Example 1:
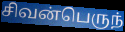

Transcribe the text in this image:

சிவன்பெருந்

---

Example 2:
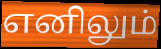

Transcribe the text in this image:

எனிலும்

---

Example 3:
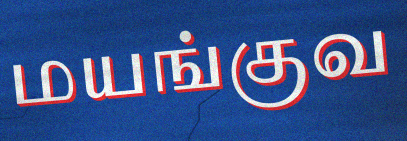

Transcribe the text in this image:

மயங்குவ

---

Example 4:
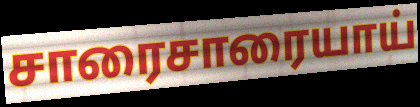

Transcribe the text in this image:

சாரைசாரையாய்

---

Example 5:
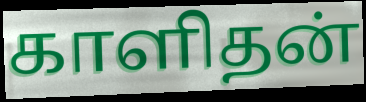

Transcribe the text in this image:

காளிதன்